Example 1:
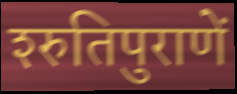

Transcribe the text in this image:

श्रुतिपुराणें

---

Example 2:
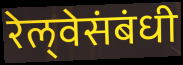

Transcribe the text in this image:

रेल्वेसंबंधी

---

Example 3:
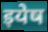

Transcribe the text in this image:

इयेष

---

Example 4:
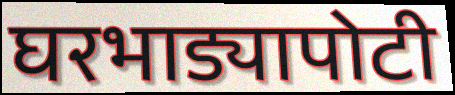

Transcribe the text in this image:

घरभाड्यापोटी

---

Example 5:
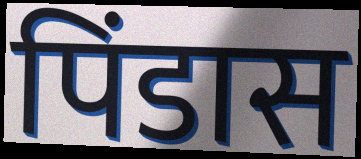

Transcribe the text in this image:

पिंडास